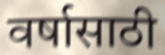
वर्षासाठी